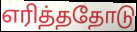
எரித்ததோடு